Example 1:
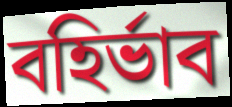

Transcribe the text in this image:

বহির্ভাব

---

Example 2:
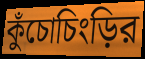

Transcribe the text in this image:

কুঁচোচিংড়ির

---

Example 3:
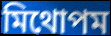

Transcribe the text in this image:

মিথোপম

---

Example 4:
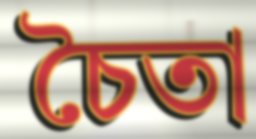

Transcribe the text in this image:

চৈতা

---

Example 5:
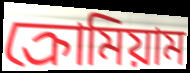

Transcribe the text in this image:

ক্রোমিয়াম